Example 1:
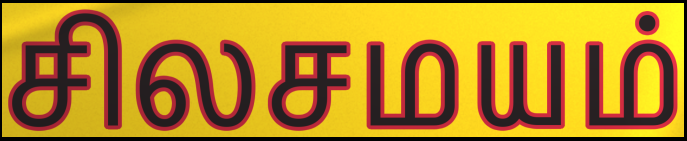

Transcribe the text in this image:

சிலசமயம்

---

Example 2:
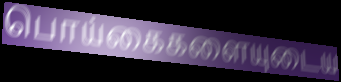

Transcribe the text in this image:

பொய்கைகளையுடைய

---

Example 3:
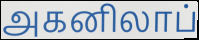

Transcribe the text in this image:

அகனிலாப்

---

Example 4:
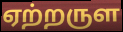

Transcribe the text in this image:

ஏற்றருள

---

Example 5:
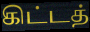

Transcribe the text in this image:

கிட்டத்